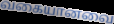
வகையானவை